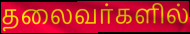
தலைவர்களில்